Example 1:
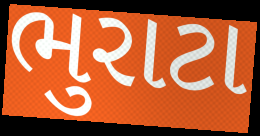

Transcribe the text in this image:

ભુરાટા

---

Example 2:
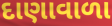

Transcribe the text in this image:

દાણાવાળા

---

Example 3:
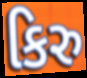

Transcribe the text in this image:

કિરુ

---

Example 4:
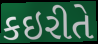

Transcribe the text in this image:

કઇરીતે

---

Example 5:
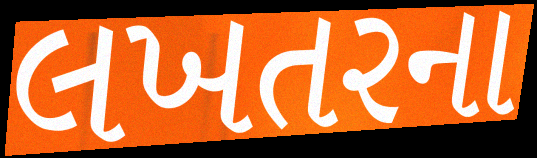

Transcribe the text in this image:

લખતરના